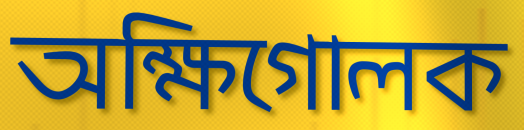
অক্ষিগোলক